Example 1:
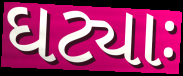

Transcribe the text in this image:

ઘટ્યાઃ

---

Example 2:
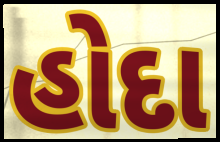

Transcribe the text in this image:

હોદા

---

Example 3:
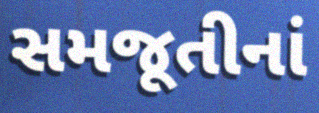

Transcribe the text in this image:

સમજૂતીનાં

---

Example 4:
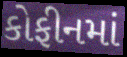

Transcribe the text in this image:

કોફીનમાં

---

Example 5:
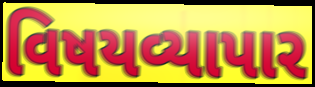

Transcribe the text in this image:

વિષયવ્યાપાર